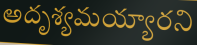
అదృశ్యమయ్యారని